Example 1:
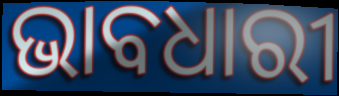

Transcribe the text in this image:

ଭାବଧାରୀ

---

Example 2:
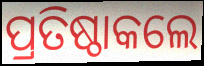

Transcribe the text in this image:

ପ୍ରତିଷ୍ଠାକଲେ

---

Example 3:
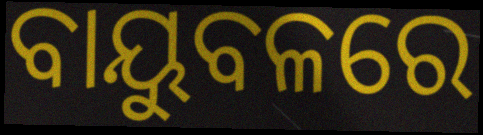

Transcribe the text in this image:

ବାୟୁବଳରେ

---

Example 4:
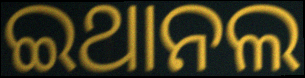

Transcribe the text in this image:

ଇଥାନଲ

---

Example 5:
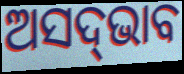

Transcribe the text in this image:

ଅସଦ୍‌ଭାବ